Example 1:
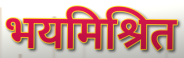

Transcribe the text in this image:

भयमिश्रित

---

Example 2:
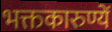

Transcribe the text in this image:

भक्तकारुण्यें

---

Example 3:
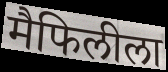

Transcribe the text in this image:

मैफिलीला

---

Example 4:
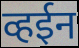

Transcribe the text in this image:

व्हईन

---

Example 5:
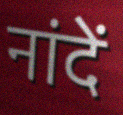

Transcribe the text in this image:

नांदें